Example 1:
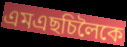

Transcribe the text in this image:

এমএছচিলৈকে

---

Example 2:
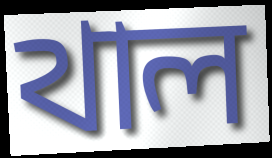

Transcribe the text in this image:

থাল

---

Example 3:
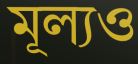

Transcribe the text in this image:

মূল্যও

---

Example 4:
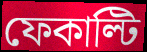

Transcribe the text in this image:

ফেকাল্টি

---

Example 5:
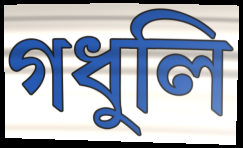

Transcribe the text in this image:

গধুলি